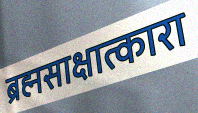
ब्रह्मसाक्षात्कारा